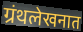
ग्रंथलेखनात